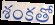
శంకతో